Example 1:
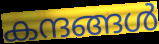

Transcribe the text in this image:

കന്ദങ്ങൾ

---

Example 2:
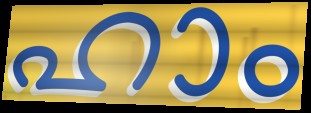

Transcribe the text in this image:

ഹാം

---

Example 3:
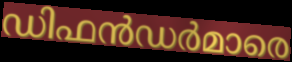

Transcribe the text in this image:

ഡിഫൻഡർമാരെ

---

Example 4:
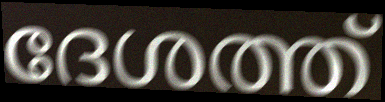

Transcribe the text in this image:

ദേശത്ത്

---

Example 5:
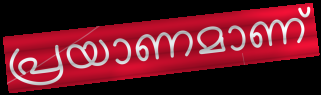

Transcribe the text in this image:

പ്രയാണമാണ്